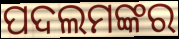
ପଦଲମଙ୍କର